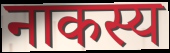
नाकस्य